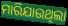
ମାରିଯାଉଥିଲା